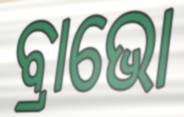
ବ୍ରାଭୋ